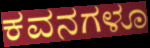
ಕವನಗಳೂ